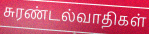
சுரண்டல்வாதிகள்